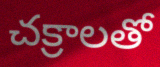
చక్రాలతో